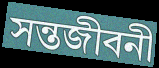
সন্তজীবনী